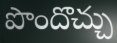
పొందొచ్చు